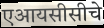
एआयसीसीचे